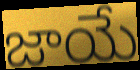
జాయే